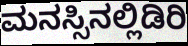
ಮನಸ್ಸಿನಲ್ಲಿಡಿರಿ